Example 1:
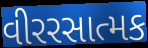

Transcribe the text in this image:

વીરરસાત્મક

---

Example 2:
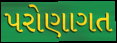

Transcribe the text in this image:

પરોણાગત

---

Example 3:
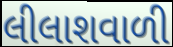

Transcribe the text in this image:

લીલાશવાળી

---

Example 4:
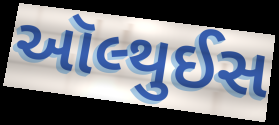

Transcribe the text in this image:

ઑલ્થુઈસ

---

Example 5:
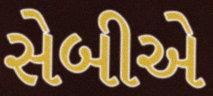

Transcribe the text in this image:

સેબીએ